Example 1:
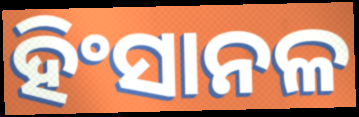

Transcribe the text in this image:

ହିଂସାନଳ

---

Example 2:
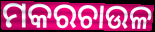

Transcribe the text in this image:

ମକରଚାଉଳ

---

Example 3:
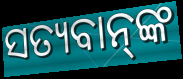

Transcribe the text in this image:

ସତ୍ୟବାନ୍‌ଙ୍କ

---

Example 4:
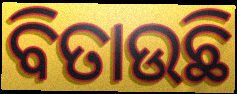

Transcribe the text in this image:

ବିତାଉଛି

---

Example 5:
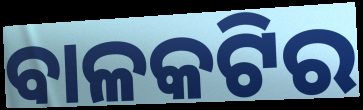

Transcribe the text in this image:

ବାଳକଟିର